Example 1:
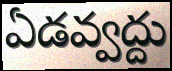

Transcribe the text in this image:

ఏడవ్వద్దు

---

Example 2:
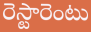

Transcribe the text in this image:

రెస్టారెంటు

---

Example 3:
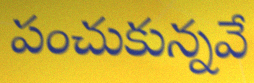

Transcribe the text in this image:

పంచుకున్నవే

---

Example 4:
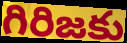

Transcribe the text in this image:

గిరిజకు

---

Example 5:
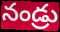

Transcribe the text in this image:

నండ్రు